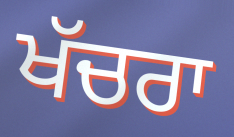
ਖੱਚਰਾ